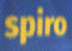
spiro